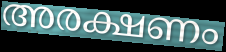
അരക്ഷണം